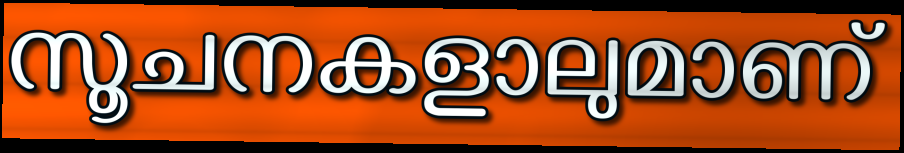
സൂചനകളാലുമാണ്